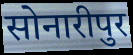
सोनारीपुर